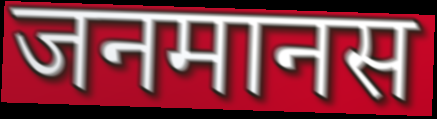
जनमानस